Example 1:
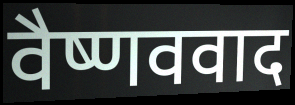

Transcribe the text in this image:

वैष्णववाद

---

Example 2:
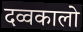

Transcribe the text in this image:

दव्वकालो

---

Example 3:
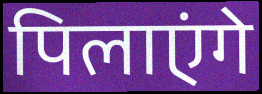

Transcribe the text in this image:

पिलाएंगे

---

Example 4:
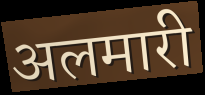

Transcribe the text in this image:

अलमारी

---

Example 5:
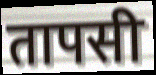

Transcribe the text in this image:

तापसी